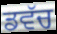
ਡਵੱਚ